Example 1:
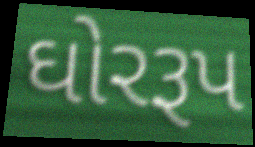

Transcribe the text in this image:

ઘોરરૂપ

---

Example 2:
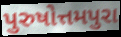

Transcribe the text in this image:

પુરુષોત્તમપુરા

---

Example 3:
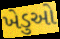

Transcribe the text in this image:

ખેડુઓ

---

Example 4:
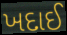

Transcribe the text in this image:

ખદાઈ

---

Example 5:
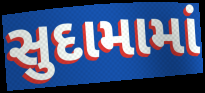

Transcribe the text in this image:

સુદામામાં